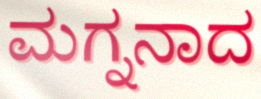
ಮಗ್ನನಾದ